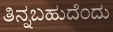
ತಿನ್ನಬಹುದೆಂದು